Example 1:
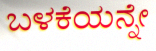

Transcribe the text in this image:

ಬಳಕೆಯನ್ನೇ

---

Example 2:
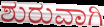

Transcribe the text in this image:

ಶುರುವಾಗಿ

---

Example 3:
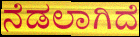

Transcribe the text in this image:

ನೆಡಲಾಗಿದೆ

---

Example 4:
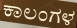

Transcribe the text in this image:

ಕಾಲಂಗಳ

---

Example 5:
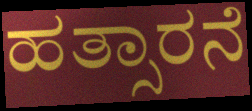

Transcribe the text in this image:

ಹತ್ಸಾರನೆ